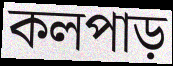
কলপাড়